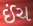
ઈંચ